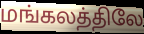
மங்கலத்திலே